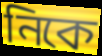
নিকে